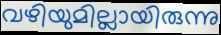
വഴിയുമില്ലായിരുന്നു